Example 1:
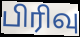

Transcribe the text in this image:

பிரிவு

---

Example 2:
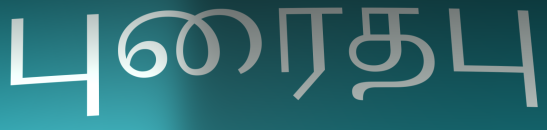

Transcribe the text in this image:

புரைதபு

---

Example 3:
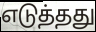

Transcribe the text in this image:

எடுத்தது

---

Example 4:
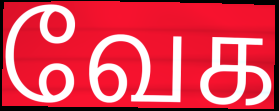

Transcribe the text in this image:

வேக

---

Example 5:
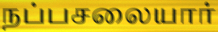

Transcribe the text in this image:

நப்பசலையார்